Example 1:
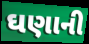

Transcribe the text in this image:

ઘણાની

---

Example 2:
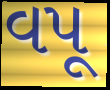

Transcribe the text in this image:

વપૂ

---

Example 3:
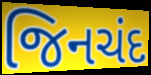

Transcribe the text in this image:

જિનચંદ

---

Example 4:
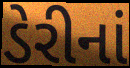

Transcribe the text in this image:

ડેરીનાં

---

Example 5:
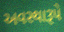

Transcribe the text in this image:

અવસ્થારૂપે